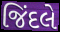
જિંદલે